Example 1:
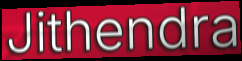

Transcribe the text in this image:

Jithendra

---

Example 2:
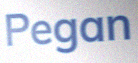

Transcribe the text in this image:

Pegan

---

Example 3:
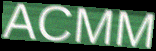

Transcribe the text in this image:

ACMM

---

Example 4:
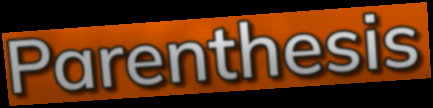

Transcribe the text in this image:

Parenthesis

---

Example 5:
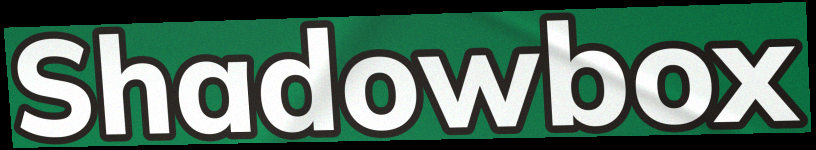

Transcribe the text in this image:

Shadowbox